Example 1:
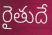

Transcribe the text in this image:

రైతుదే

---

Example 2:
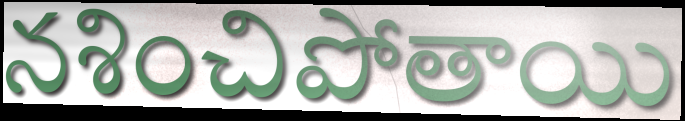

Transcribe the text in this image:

నశించిపోతాయి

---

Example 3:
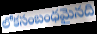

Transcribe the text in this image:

లోకసంబంధమైనది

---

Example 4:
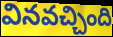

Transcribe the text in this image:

వినవచ్చింది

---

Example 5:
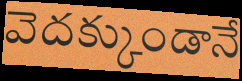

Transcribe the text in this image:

వెదక్కుండానే